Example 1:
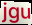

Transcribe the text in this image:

jgu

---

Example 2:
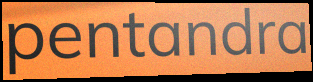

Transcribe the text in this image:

pentandra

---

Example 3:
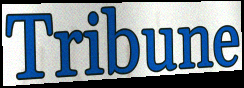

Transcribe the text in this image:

Tribune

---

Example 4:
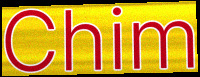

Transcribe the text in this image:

Chim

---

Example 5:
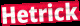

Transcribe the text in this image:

Hetrick